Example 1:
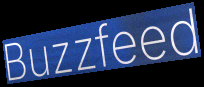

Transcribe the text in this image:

Buzzfeed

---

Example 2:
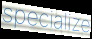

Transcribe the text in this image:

specialize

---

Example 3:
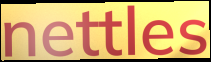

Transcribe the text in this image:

nettles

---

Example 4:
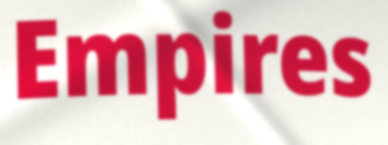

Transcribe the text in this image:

Empires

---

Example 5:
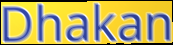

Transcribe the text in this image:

Dhakan